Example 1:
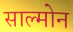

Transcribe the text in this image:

साल्मोन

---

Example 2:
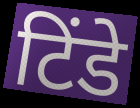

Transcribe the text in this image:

टिंडे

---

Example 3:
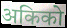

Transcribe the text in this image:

अकिको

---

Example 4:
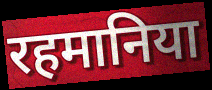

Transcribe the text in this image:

रहमानिया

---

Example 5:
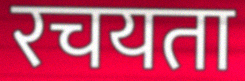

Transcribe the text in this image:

रचयता